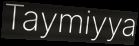
Taymiyya